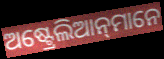
ଅଷ୍ଟ୍ରେଲିଆନ୍‌ମାନେ